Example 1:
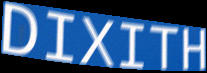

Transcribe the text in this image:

DIXITH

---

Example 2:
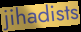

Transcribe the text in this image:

jihadists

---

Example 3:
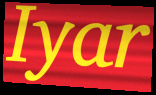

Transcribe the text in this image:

Iyar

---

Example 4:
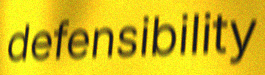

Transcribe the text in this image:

defensibility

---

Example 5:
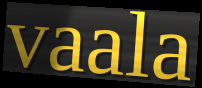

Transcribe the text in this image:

vaala